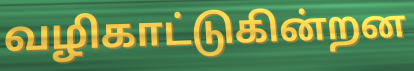
வழிகாட்டுகின்றன